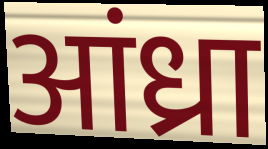
आंध्रा